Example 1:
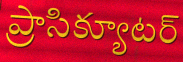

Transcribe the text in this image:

ప్రాసిక్యూటర్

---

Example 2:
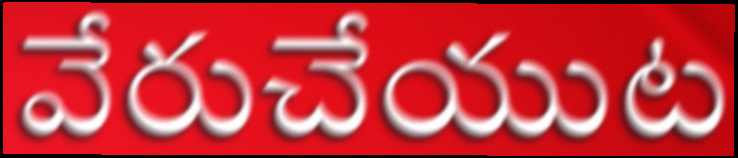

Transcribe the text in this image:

వేరుచేయుట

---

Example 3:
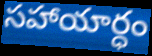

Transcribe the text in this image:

సహాయార్ధం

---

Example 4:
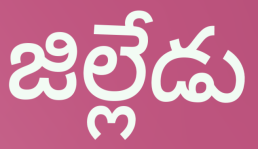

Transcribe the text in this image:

జిల్లేడు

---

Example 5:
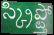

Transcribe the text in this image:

స్క్రిప్ట్తో